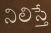
నిలిస్తే